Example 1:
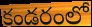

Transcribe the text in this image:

కండరంలో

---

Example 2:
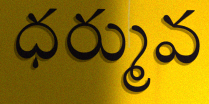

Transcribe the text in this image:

ధర్మువ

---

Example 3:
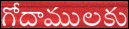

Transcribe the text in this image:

గోదాములకు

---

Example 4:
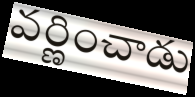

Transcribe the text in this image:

వర్ణించాడు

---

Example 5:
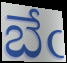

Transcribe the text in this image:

బేఁ